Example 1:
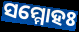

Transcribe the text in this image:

ସମ୍ମୋହଃ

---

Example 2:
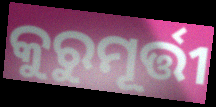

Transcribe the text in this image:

କୁରୁମୂର୍ତ୍ତୀ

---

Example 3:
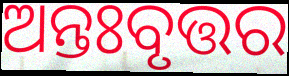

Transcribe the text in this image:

ଅନ୍ତଃବୃତ୍ତର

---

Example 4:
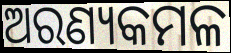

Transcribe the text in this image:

ଅରଣ୍ୟକମଳ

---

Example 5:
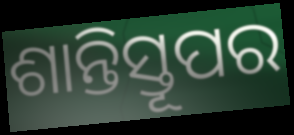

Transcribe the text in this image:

ଶାନ୍ତିସ୍ତୂପର